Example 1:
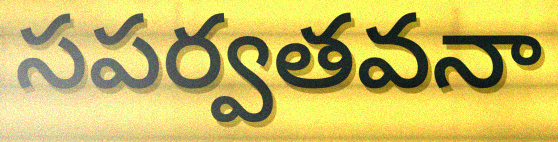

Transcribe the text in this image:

సపర్వతవనా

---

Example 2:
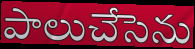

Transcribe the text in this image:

పాలుచేసెను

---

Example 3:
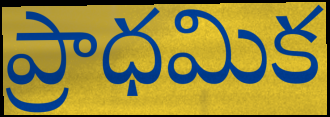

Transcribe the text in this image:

ప్రాధమిక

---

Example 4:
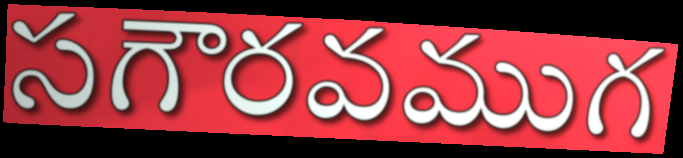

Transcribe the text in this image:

సగౌరవముగ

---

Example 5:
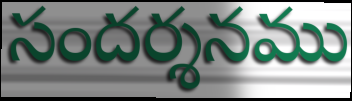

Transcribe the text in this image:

సందర్శనము